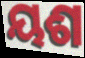
ୟଶ